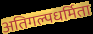
अतिगल्पधर्मिता